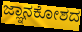
ಜ್ಞಾನಕೋಶದ